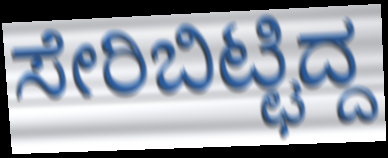
ಸೇರಿಬಿಟ್ಟಿದ್ದ